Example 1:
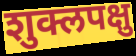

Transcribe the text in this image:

शुक्लपक्षु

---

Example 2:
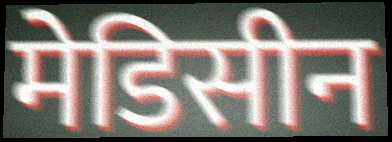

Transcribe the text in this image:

मेडिसीन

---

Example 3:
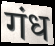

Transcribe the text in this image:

गंध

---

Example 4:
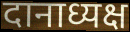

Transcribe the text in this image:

दानाध्यक्ष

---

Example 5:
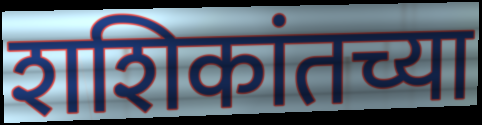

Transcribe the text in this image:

शशिकांतच्या